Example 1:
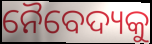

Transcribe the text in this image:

ନୈବେଦ୍ୟକୁ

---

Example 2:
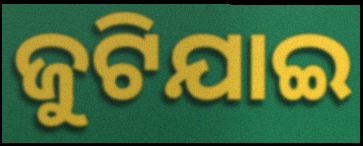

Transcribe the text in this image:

ଜୁଟିଯାଇ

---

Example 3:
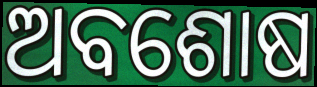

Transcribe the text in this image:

ଅବଶୋଷ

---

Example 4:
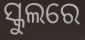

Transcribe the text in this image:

ସ୍କୁଲରେ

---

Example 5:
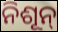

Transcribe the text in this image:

ନିଶୂନ୍